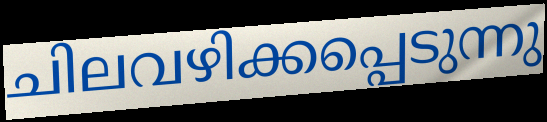
ചിലവഴിക്കപ്പെടുന്നു